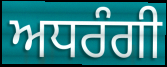
ਅਧਰੰਗੀ